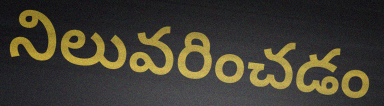
నిలువరించడం